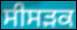
ਸੀਸੜਕ